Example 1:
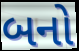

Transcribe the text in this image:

બનો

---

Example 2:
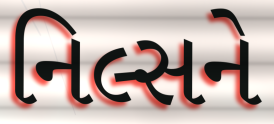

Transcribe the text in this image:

નિલ્સને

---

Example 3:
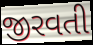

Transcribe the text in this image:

જીરવતી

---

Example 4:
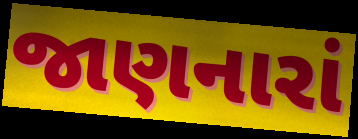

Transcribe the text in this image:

જાણનારાં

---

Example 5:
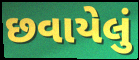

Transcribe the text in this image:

છવાયેલું